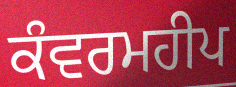
ਕੰਵਰਮਹੀਪ